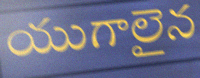
యుగాలైన